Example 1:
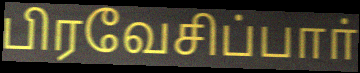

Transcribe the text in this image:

பிரவேசிப்பார்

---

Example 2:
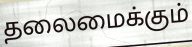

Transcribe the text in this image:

தலைமைக்கும்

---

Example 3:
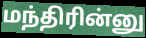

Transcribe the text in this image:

மந்திரின்னு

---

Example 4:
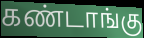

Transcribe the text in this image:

கண்டாங்கு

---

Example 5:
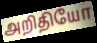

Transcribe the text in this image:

அறிதியோ